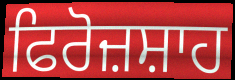
ਫਿਰੋਜ਼ਸ਼ਾਹ